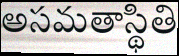
అసమతాస్థితి